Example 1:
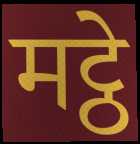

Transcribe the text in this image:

मट्ठे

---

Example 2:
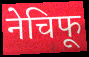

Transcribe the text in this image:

नेचिफू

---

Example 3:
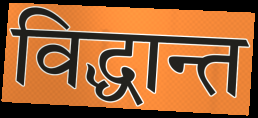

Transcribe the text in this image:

विद्धान्त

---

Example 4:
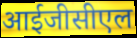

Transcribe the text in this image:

आईजीसीएल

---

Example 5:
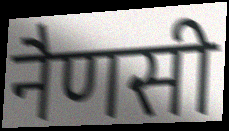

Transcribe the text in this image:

नैणसी